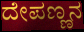
ದೇಪಣ್ಣನ